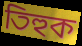
তিহুক